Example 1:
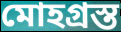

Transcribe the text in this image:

মোহগ্রস্ত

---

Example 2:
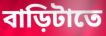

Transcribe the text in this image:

বাড়িটাতে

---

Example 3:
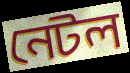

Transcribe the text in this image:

নেটল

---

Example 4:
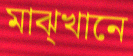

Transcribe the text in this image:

মাঝ্খানে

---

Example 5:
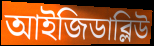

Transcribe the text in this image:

আইজিডাব্লিউ